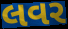
લવર